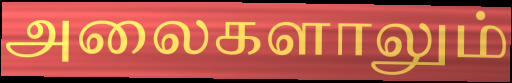
அலைகளாலும்